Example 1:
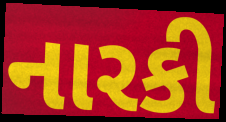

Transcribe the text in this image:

નારકી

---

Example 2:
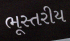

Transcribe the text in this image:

ભૂસ્તરીય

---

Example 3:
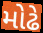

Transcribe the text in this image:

મોઢે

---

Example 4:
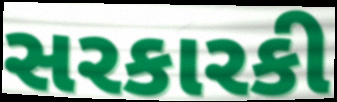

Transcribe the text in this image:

સરકારકી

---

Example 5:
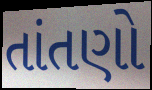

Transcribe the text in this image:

તાંતણો